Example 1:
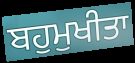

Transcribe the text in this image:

ਬਹੁਮੁਖੀਤਾ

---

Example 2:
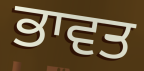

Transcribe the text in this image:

ਭਾਵਤ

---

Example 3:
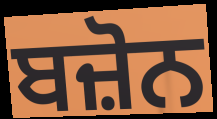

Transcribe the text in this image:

ਬਜ਼ੋਨ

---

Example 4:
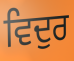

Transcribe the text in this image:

ਵਿਦੁਰ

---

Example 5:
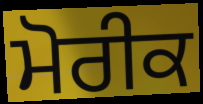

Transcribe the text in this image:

ਮੋਰੀਕ